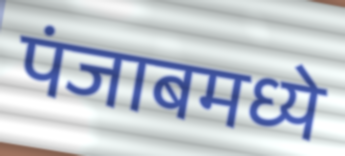
पंजाबमध्ये